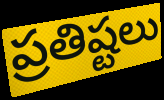
ప్రతిష్టలు